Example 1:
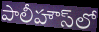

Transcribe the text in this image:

పాలీహౌస్‌లో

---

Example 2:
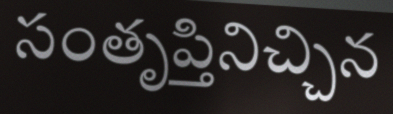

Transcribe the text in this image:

సంతృప్తినిచ్చిన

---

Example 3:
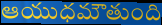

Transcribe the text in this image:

ఆయుధమౌతుంది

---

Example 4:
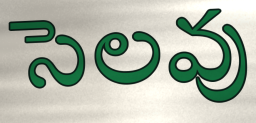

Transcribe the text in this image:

సెలవు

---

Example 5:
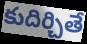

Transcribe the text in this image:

కుదిర్చితే